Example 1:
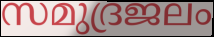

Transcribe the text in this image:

സമുദ്രജലം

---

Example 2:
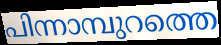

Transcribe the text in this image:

പിന്നാമ്പുറത്തെ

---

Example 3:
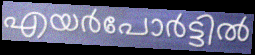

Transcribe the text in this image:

എയർപോർട്ടിൽ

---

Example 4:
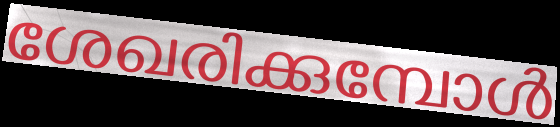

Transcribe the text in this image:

ശേഖരിക്കുമ്പോൾ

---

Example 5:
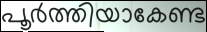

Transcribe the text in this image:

പൂർത്തിയാകേണ്ട